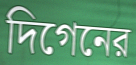
দিগেনের